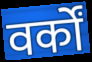
वर्कों